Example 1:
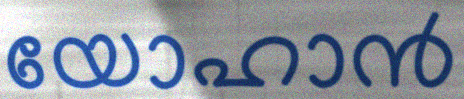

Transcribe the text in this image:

യോഹാൻ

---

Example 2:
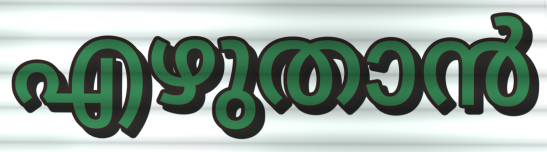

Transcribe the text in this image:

എഴുതാൻ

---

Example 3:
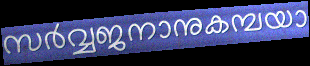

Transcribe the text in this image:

സർവ്വജനാനുകമ്പയാ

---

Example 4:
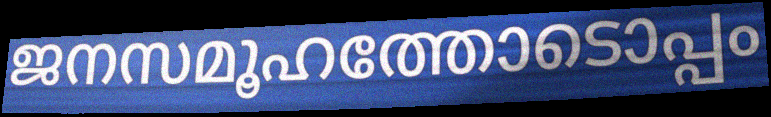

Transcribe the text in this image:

ജനസമൂഹത്തോടൊപ്പം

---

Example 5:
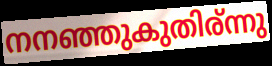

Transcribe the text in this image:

നനഞ്ഞുകുതിര്ന്നു